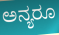
ಅನ್ಯರೂ